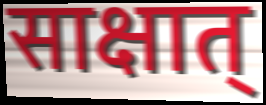
साक्षात्